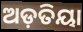
ଅଡ଼ତିୟା